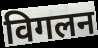
विगलन